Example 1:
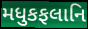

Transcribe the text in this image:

મધુકફલાનિ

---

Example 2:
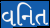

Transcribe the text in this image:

વનિત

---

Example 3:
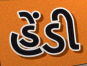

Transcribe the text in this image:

હેંડી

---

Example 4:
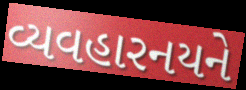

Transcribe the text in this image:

વ્યવહારનયને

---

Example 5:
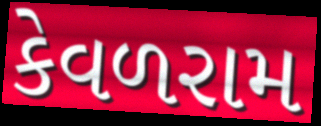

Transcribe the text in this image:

કેવળરામ